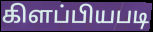
கிளப்பியபடி